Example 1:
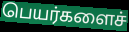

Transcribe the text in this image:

பெயர்களைச்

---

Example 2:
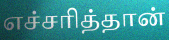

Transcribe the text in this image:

எச்சரித்தான்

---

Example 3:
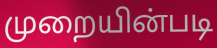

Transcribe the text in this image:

முறையின்படி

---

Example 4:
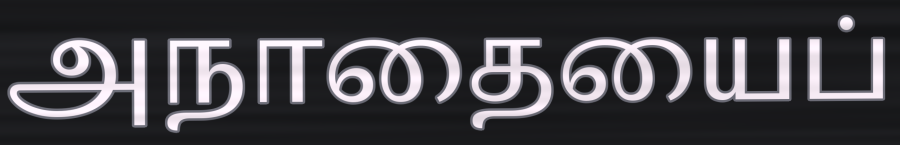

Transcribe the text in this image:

அநாதையைப்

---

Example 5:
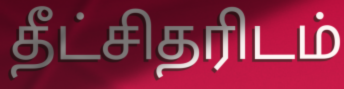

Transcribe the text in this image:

தீட்சிதரிடம்